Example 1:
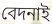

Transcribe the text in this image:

বেদনাই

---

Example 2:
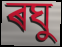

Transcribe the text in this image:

ৰঘু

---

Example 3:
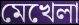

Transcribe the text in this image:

মেখেলা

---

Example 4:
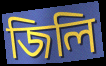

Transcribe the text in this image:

জিলি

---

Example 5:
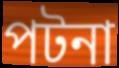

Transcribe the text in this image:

পটনা